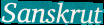
Sanskrut